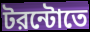
টরন্টোতে